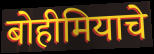
बोहीमियाचे